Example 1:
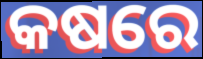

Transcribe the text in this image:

କଷରେ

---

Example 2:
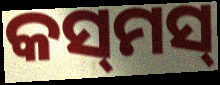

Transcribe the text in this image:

କସ୍‌ମସ୍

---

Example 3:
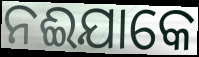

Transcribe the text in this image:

ନଈଯାକେ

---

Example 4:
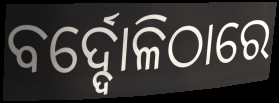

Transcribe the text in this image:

ବର୍ଦ୍ଦୋଳିଠାରେ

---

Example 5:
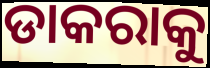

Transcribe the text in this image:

ଡାକରାକୁ